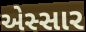
એસ્સાર